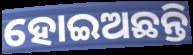
ହୋଇଅଛନ୍ତି